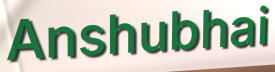
Anshubhai